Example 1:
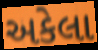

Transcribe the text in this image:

અકેલા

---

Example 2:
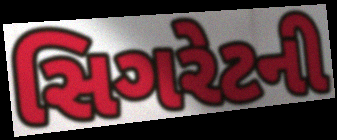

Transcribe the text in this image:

સિગરેટની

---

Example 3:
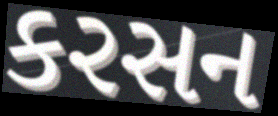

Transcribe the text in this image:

કરસન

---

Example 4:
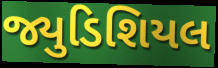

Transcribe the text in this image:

જ્યુડિશિયલ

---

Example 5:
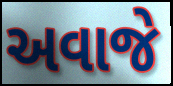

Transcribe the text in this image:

અવાજે